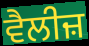
ਵੈਲੀਜ਼